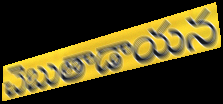
చెబుతాడాయన